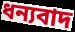
ধন্যবাদ